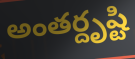
అంతర్దృష్టి